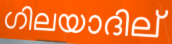
ഗിലയാദില്